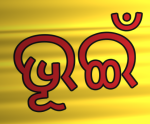
ଭୂଇଁ